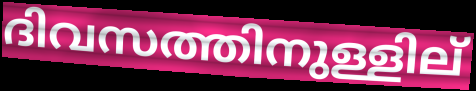
ദിവസത്തിനുള്ളില്